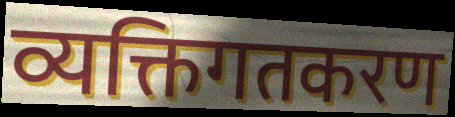
व्यक्तिगतकरण